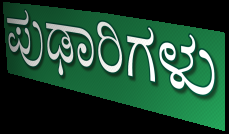
ಪುಢಾರಿಗಳು